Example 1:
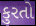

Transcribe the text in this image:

કુરતો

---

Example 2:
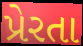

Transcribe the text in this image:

પ્રેરતા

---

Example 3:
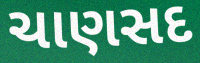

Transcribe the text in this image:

ચાણસદ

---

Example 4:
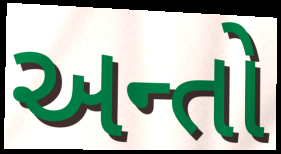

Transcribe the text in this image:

અન્તો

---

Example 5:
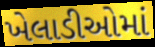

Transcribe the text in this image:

ખેલાડીઓમાં